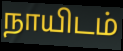
நாயிடம்